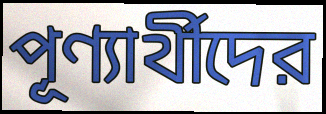
পূণ্যার্থীদের